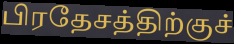
பிரதேசத்திற்குச்